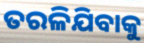
ତରଳିଯିବାକୁ